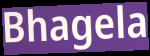
Bhagela